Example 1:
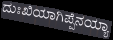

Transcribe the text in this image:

ದುಃಖಿಯಾಗಿಪ್ಪೆನಯ್ಯಾ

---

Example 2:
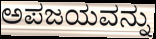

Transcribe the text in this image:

ಅಪಜಯವನ್ನು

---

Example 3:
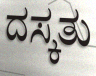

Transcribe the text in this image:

ದಸ್ಕತು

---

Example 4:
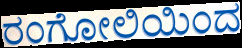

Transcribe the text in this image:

ರಂಗೋಲಿಯಿಂದ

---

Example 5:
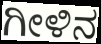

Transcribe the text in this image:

ಗೀಳಿನ